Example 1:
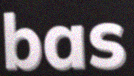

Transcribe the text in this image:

bas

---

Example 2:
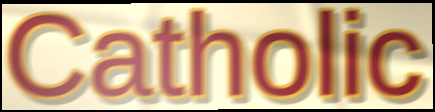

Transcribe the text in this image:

Catholic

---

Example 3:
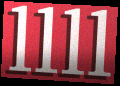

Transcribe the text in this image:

llll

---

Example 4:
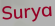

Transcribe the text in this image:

Surya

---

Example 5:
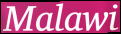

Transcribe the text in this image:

Malawi